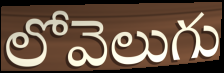
లోవెలుగు